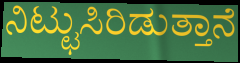
ನಿಟ್ಟುಸಿರಿಡುತ್ತಾನೆ